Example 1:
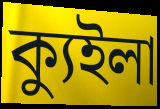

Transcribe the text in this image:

ক্যুইলা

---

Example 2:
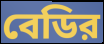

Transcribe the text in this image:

বেডির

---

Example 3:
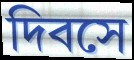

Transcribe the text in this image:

দিবসে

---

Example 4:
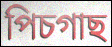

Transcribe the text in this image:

পিচগাছ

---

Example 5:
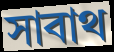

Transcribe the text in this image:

সাবাথ